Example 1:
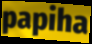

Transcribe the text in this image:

papiha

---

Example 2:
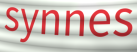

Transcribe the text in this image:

synnes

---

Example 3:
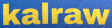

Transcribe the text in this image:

kalraw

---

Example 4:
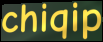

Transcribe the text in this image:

chiqip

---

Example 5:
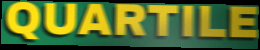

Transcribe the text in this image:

QUARTILE